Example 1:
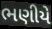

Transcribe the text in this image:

ભણીયે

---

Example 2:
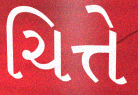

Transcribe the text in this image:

ચિત્તે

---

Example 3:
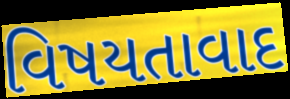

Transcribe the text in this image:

વિષયતાવાદ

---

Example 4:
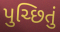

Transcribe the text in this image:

પુચ્છિતું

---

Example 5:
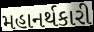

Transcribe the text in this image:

મહાનર્થકારી